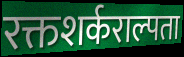
रक्तशर्कराल्पता